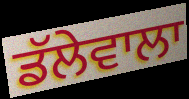
ਡੱਲੇਵਾਲਾ